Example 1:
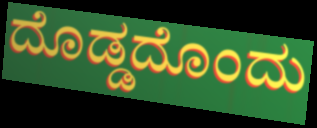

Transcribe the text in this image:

ದೊಡ್ಡದೊಂದು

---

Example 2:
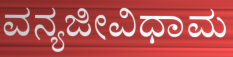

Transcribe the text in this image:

ವನ್ಯಜೀವಿಧಾಮ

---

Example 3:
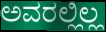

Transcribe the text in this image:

ಅವರಲ್ಲಿಲ್ಲ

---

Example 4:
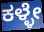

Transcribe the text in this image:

ಕಳ್ಳೇ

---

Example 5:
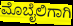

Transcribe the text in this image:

ಮೊಬೈಲಿಗಾಗಿ